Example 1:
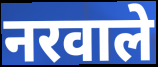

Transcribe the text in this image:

नरवाले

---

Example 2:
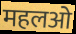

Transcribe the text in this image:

महलओ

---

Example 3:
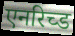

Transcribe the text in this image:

एनरिच्ड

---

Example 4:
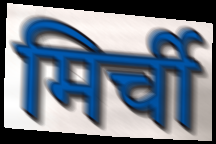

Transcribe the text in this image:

मिर्ची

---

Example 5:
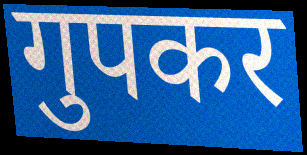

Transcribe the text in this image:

गुपकर